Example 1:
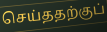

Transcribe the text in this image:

செய்ததற்குப்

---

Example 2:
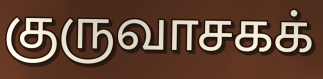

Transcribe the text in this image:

குருவாசகக்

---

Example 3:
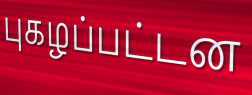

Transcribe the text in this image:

புகழப்பட்டன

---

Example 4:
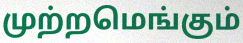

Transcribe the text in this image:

முற்றமெங்கும்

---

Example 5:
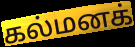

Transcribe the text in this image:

கல்மனக்